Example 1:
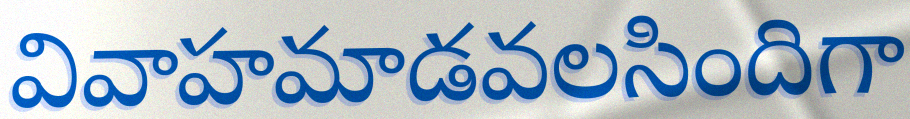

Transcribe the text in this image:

వివాహమాడవలసిందిగా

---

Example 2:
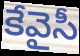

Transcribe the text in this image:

కేవైసీ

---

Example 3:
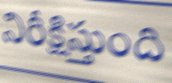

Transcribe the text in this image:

నిరీక్షిస్తుంది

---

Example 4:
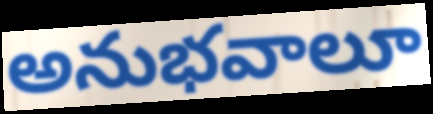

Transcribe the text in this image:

అనుభవాలూ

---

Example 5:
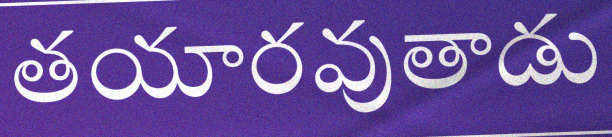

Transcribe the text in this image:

తయారవుతాడు